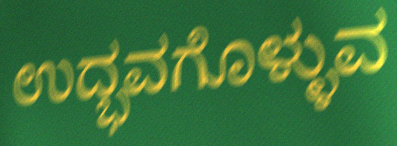
ಉದ್ಭವಗೊಳ್ಳುವ